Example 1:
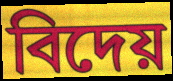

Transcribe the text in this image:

বিদেয়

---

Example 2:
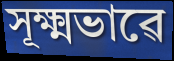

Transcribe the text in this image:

সূক্ষ্মভাৱে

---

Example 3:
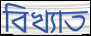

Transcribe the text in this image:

বিখ্যাত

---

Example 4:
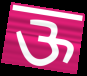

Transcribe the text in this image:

ক্ত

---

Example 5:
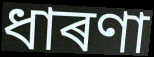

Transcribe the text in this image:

ধাৰণা